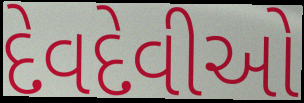
દેવદેવીઓ